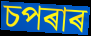
চপৰাৰ